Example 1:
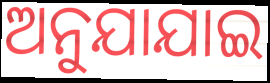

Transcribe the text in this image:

ଅନୁଯାଯାଇ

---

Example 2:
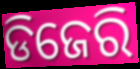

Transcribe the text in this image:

ଡିଜେରି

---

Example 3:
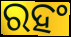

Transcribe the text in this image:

ରହଂ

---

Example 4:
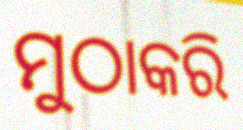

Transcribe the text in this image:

ମୁଠାକରି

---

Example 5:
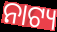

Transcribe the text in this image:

ନାଟ୍ୟ